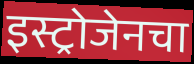
इस्ट्रोजेनचा